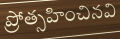
ప్రోత్సహించినవి